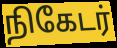
நிகேடர்